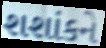
શશાંકને